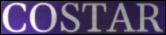
COSTAR